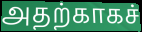
அதற்காகச்